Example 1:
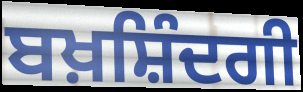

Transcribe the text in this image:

ਬਖ਼ਸ਼ਿੰਦਗੀ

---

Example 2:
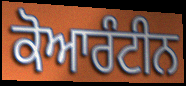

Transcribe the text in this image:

ਕੋਆਰੰਟੀਨ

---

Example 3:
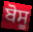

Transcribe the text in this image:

ਬੋਸੂ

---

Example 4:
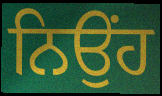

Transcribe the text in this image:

ਨਿਉਂਹ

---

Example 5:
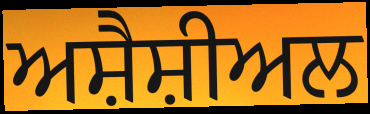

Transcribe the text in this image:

ਅਸ਼ੈਸ਼ੀਅਲ